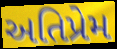
અતિપ્રેમ